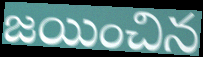
జయించిన